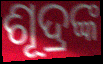
ଶୂଦ୍ରଙ୍କ